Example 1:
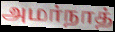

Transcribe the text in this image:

அமர்நாத்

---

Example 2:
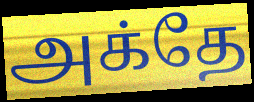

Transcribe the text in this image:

அக்தே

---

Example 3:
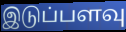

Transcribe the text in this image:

இடுப்பளவு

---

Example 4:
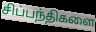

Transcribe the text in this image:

சிப்பந்திகளை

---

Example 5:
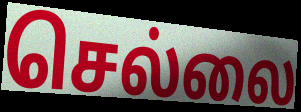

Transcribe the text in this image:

செல்லை